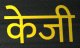
केजी